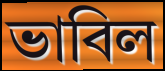
ভাবিল